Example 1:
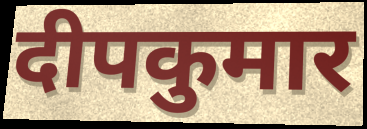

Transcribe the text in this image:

दीपकुमार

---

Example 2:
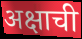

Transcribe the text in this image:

अक्षाची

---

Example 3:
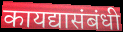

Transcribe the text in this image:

कायद्यासंबंधी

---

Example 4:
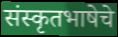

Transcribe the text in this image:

संस्कृतभाषेचे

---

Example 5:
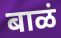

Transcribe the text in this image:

बाळं